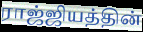
ராஜ்ஜியத்தின்